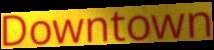
Downtown